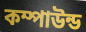
কম্পাউন্ড